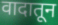
वादातून